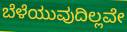
ಬೆಳೆಯುವುದಿಲ್ಲವೇ